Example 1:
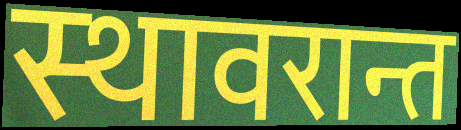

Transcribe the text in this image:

स्थावरान्त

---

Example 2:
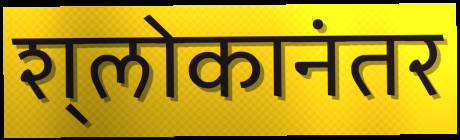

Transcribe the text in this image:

श्लोकानंतर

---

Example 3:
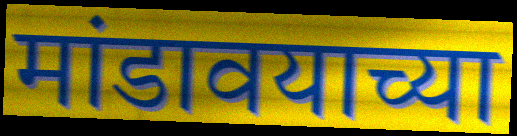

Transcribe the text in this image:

मांडावयाच्या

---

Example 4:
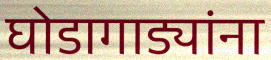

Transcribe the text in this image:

घोडागाड्यांना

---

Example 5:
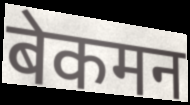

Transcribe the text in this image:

बेकमन